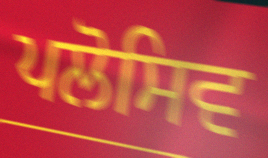
ਪਲੋਸਿਵ